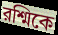
রশ্মিকে